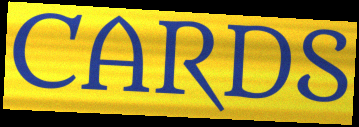
CARDS